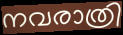
നവരാത്രി